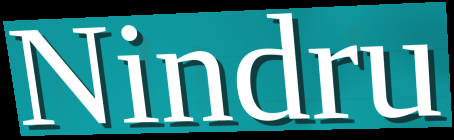
Nindru